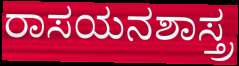
ರಾಸಯನಶಾಸ್ತ್ರ